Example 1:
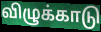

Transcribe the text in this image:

விழுக்காடு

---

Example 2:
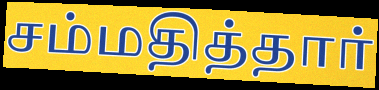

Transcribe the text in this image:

சம்மதித்தார்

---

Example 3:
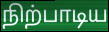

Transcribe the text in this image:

நிற்பாடிய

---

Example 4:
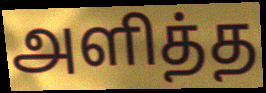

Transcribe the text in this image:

அளித்த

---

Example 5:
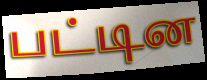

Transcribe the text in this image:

பட்டின